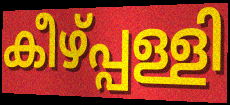
കീഴ്പ്പള്ളി